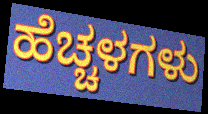
ಹೆಚ್ಚಳಗಳು